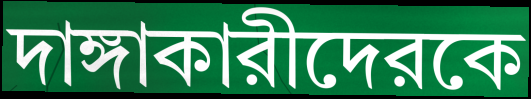
দাঙ্গাকারীদেরকে